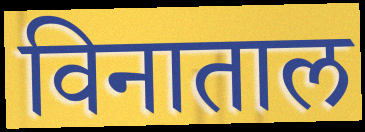
विनाताल